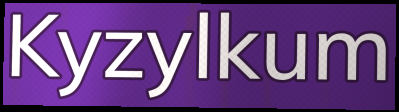
Kyzylkum